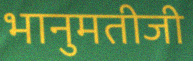
भानुमतीजी